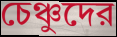
চেঞ্চুদের